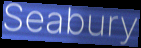
Seabury